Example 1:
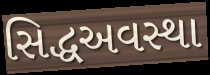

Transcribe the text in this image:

સિદ્ધઅવસ્થા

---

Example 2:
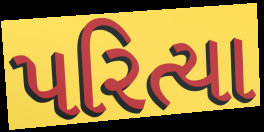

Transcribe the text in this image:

પરિત્યા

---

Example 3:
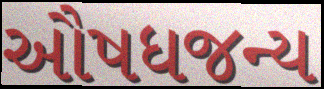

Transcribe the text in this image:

ઔષધજન્ય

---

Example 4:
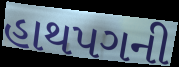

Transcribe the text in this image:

હાથપગની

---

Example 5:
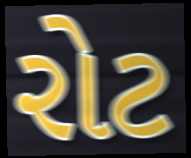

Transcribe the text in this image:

રોટ